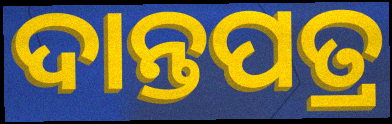
ଦାନ୍ତପତ୍ର